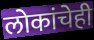
लोकांचेही